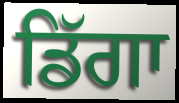
ਡਿੱਗਾ